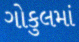
ગોકુલમાં